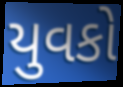
યુવકો